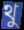
থু